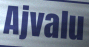
Ajvalu